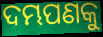
ଦମ୍ଭପଣକୁ